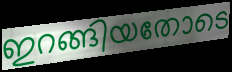
ഇറങ്ങിയതോടെ